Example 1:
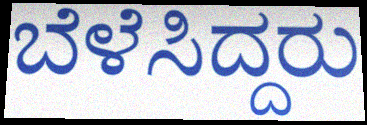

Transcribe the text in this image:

ಬೆಳೆಸಿದ್ದರು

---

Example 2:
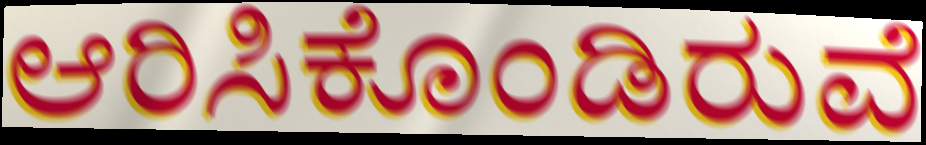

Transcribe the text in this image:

ಆರಿಸಿಕೊಂಡಿರುವೆ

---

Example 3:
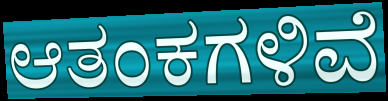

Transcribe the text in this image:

ಆತಂಕಗಳಿವೆ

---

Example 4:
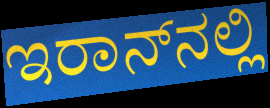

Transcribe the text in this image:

ಇರಾನ್‌ನಲ್ಲಿ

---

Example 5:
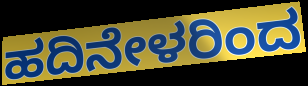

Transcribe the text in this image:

ಹದಿನೇಳರಿಂದ